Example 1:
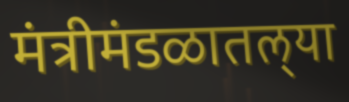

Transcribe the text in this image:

मंत्रीमंडळातल्या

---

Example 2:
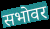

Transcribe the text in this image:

सभोवर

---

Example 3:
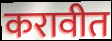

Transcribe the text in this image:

करावीत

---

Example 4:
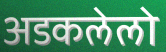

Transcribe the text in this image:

अडकलेलो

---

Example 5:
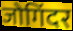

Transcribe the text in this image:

जोगिंदर